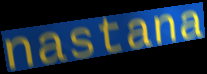
nastana